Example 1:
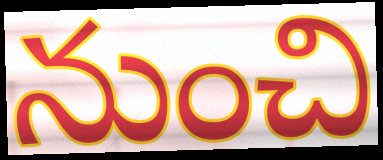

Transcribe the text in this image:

నుంచి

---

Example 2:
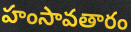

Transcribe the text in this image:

హంసావతారం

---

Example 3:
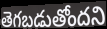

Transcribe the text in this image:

తెగబడుతోందని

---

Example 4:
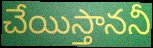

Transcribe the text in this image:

చేయిస్తాననీ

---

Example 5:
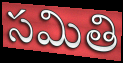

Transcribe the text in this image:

సమితి